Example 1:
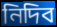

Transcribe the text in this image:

নিদিব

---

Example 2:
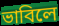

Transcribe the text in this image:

ভাবিলে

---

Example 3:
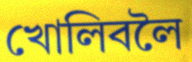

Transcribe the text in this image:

খোলিবলৈ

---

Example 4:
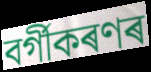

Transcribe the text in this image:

বৰ্গীকৰণৰ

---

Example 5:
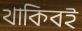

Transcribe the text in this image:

থাকিবই